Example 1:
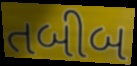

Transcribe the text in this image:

તબીબ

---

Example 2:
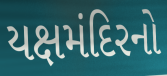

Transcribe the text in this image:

યક્ષમંદિરનો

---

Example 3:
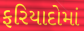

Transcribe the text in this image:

ફરિયાદોમાં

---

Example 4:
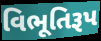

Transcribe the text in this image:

વિભૂતિરૂપ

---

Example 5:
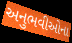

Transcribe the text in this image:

અનુભવીઓના